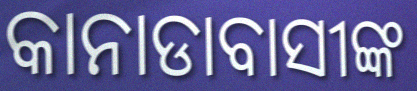
କାନାଡାବାସୀଙ୍କ